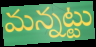
మన్నట్టు